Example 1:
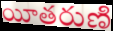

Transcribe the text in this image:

యీతరుణి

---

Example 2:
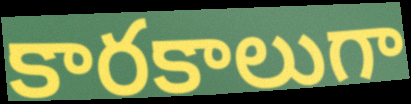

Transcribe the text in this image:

కారకాలుగా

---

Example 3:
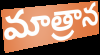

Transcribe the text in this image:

మాత్రాన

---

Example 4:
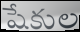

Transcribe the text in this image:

షేకుల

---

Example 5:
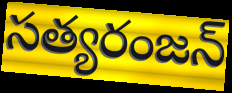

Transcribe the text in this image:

సత్యరంజన్